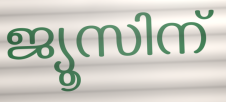
ജ്യൂസിന്